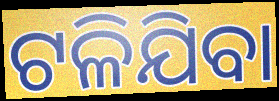
ଟଳିଯିବା